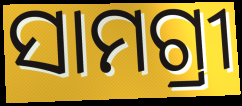
ସାମଗ୍ରୀ